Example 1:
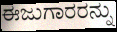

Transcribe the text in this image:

ಈಜುಗಾರರನ್ನು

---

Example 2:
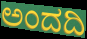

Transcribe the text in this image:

ಅಂದದಿ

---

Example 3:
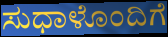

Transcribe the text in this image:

ಸುಧಾಳೊಂದಿಗೆ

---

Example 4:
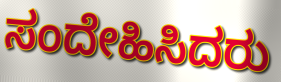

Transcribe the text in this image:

ಸಂದೇಹಿಸಿದರು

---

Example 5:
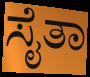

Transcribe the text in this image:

ಸೈತಾ